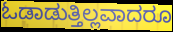
ಓಡಾಡುತ್ತಿಲ್ಲವಾದರೂ